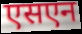
एसएन